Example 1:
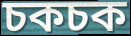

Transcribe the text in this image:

চকচক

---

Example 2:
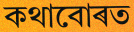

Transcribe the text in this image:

কথাবোৰত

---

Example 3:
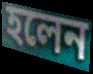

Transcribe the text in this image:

হলেন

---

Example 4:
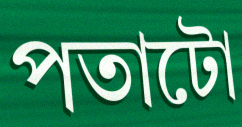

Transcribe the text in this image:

পতাটো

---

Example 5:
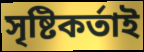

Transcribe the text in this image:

সৃষ্টিকৰ্তাই